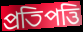
প্ৰতিপত্তি